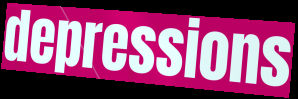
depressions